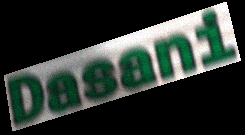
Dasani